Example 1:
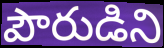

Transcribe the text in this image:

పౌరుడిని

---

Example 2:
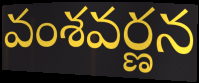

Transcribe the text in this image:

వంశవర్ణన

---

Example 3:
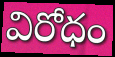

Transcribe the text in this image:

విరోధం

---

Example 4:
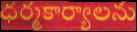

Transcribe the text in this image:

ధర్మకార్యాలను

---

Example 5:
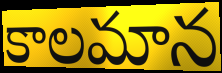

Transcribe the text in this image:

కాలమాన